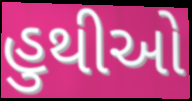
હુથીઓ